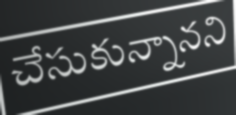
చేసుకున్నానని